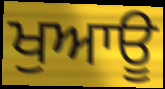
ਖੁਆਊ